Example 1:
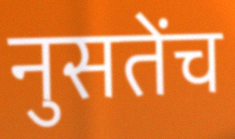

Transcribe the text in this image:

नुसतेंच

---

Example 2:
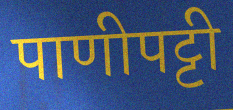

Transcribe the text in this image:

पाणीपट्टी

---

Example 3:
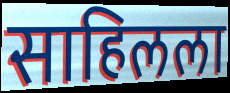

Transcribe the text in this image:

साहिलला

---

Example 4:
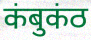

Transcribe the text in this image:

कंबुकंठ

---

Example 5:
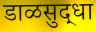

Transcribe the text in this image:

डाळसुद्धा